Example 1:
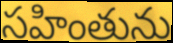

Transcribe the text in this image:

సహింతును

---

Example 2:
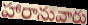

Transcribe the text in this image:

హారానువారు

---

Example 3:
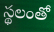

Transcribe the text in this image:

స్థలంతో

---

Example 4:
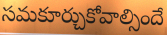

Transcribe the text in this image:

సమకూర్చుకోవాల్సిందే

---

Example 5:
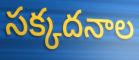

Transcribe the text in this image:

సక్కదనాల